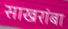
साखरांबा